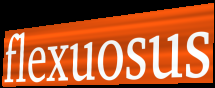
flexuosus